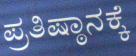
ಪ್ರತಿಷ್ಠಾನಕ್ಕೆ